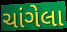
ચાંગેલા